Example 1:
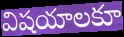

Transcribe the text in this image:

విషయాలకూ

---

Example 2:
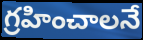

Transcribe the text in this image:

గ్రహించాలనే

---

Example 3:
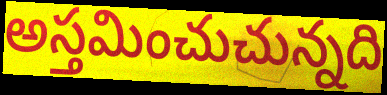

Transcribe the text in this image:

అస్తమించుచున్నది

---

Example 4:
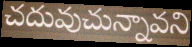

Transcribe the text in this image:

చదువుచున్నావని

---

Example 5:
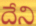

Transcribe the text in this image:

దేని